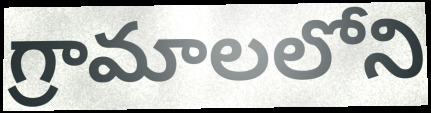
గ్రామాలలోని